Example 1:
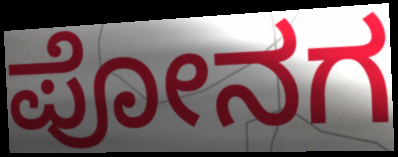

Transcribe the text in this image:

ಪೋನಗ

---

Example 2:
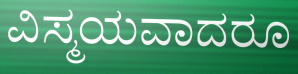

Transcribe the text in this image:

ವಿಸ್ಮಯವಾದರೂ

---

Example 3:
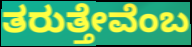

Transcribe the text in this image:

ತರುತ್ತೇವೆಂಬ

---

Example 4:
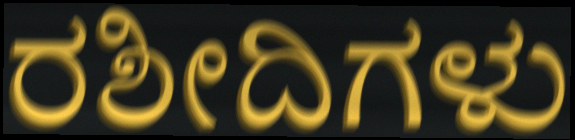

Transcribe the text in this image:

ರಶೀದಿಗಳು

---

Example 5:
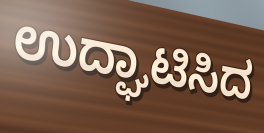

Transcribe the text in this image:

ಉದ್ಘಾಟಿಸಿದ